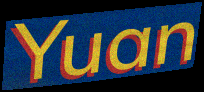
Yuan